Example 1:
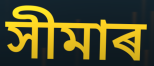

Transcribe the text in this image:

সীমাৰ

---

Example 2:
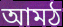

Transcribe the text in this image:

আমঠ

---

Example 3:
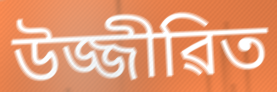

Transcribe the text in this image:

উজ্জীৱিত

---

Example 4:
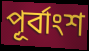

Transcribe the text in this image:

পূৰ্বাংশ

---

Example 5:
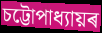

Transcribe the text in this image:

চট্টোপাধ্যায়ৰ